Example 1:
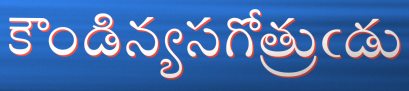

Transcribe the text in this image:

కౌండిన్యసగోత్రుఁడు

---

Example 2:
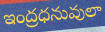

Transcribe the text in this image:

ఇంద్రధనువులా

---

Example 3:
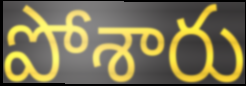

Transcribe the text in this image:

పోశారు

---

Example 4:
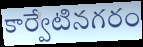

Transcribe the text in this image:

కార్వేటినగరం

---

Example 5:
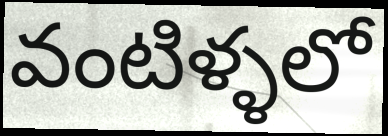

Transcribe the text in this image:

వంటిళ్ళలో